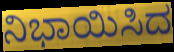
ನಿಭಾಯಿಸಿದ